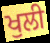
ਖੁਲੀ